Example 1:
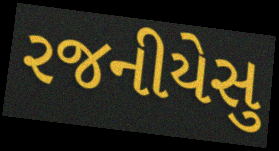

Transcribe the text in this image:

રજનીયેસુ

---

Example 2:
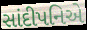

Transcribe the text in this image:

સાંદીપનિએ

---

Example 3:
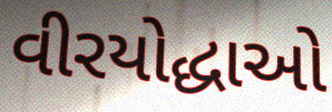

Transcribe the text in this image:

વીરયોદ્ધાઓ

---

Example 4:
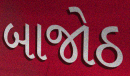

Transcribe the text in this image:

બાજોઠ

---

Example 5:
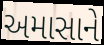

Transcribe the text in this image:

અમાસાને